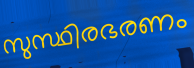
സുസ്ഥിരഭരണം